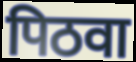
पिठवा